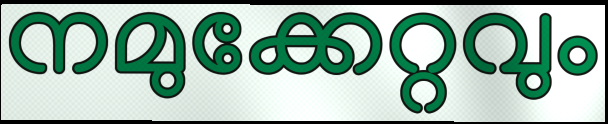
നമുക്കേറ്റവും